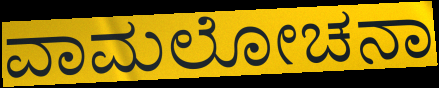
ವಾಮಲೋಚನಾ